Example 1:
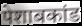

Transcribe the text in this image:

पेशाबकांड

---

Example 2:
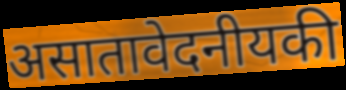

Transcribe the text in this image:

असातावेदनीयकी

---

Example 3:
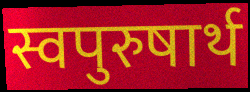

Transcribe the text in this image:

स्वपुरुषार्थ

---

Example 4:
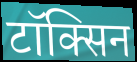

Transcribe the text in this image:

टॉक्सिन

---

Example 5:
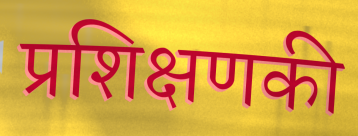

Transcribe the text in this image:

प्रशिक्षणकी